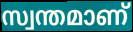
സ്വന്തമാണ്